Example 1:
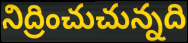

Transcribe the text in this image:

నిద్రించుచున్నది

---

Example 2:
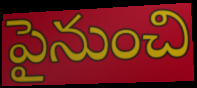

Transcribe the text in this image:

పైనుంచి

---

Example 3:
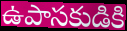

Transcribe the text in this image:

ఉపాసకుడికి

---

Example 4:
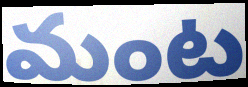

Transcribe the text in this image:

మంట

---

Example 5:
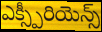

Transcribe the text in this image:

ఎక్స్పీరియెన్స్